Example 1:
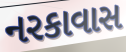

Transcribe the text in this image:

નરકાવાસ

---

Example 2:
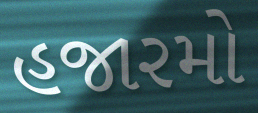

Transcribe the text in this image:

હજારમો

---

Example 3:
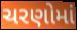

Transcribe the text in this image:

ચરણોમાં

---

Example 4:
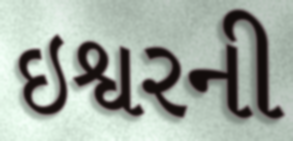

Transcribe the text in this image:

ઇશ્વરની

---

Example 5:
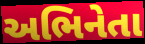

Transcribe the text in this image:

અભિનેતા